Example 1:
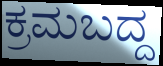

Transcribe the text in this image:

ಕ್ರಮಬದ್ದ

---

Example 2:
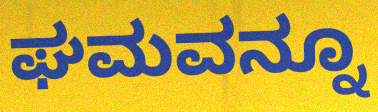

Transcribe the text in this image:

ಘಮವನ್ನೂ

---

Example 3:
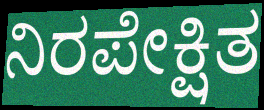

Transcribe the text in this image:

ನಿರಪೇಕ್ಷಿತ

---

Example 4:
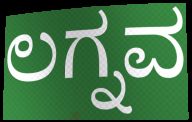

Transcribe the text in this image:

ಲಗ್ನವ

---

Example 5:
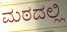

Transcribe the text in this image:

ಮಠದಲ್ಲಿ